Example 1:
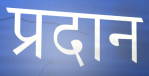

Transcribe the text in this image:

प्रदान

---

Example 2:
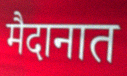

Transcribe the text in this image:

मैदानात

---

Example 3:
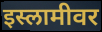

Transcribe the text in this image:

इस्लामीवर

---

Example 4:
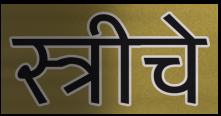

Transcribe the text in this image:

स्त्रीचे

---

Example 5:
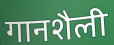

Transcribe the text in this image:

गानशैली